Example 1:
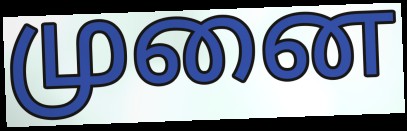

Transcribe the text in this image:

முனை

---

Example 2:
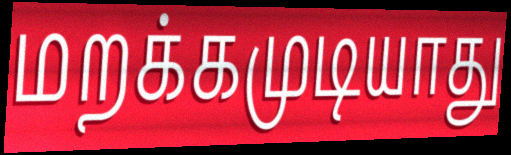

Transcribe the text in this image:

மறக்கமுடியாது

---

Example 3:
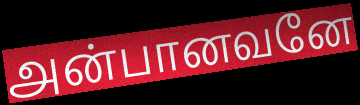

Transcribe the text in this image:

அன்பானவனே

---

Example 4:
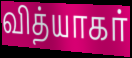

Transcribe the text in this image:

வித்யாகர்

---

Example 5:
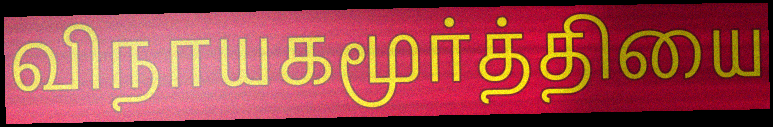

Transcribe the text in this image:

விநாயகமூர்த்தியை